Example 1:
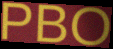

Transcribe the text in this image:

PBO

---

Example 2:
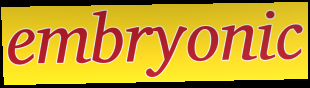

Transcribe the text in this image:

embryonic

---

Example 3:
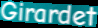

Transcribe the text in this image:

Girardet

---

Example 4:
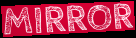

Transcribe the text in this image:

MIRROR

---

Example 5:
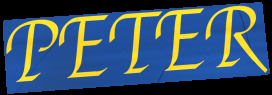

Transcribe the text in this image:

PETER